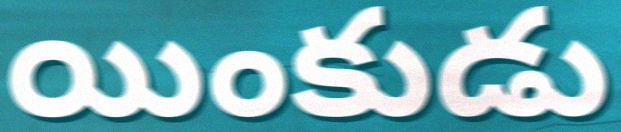
యింకుడు